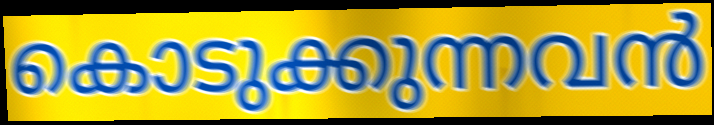
കൊടുക്കുന്നവൻ